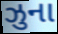
ઝુના